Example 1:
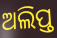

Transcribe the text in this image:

ଅଲିପ୍ତ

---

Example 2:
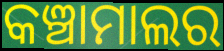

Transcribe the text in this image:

କଞ୍ଚାମାଲର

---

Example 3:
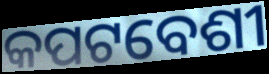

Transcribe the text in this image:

କପଟବେଶୀ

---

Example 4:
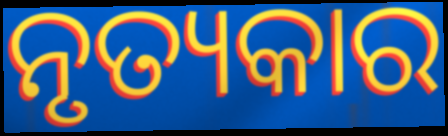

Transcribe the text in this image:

ନୃତ୍ୟକାର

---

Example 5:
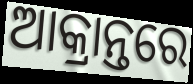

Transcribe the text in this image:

ଆକ୍ରାନ୍ତରେ